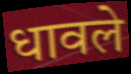
धावले